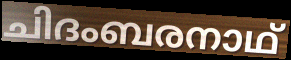
ചിദംബരനാഥ്